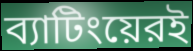
ব্যাটিংয়েরই